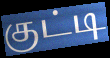
குட்டி